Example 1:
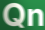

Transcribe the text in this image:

Qn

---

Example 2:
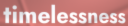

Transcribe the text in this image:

timelessness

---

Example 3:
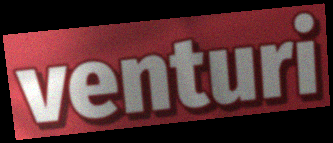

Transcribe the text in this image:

venturi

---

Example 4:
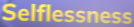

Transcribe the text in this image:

Selflessness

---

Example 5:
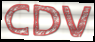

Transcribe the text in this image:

CDV